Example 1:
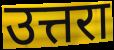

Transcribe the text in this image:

उत्तरा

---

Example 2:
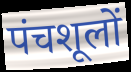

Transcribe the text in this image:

पंचशूलों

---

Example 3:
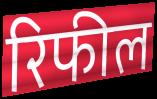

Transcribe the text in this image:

रिफील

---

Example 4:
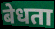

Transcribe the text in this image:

बेधता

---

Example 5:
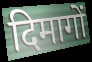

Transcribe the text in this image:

दिमागों